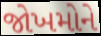
જોખમોને